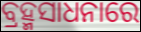
ବ୍ରହ୍ମସାଧନାରେ